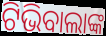
ଟିଭିବାଲାଙ୍କ